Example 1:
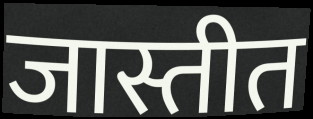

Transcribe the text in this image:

जास्तीत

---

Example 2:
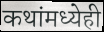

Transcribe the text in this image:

कथांमध्येही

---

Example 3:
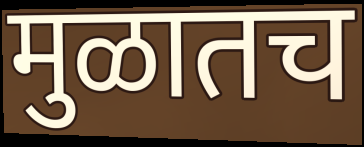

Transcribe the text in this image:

मुळातच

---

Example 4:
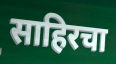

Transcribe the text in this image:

साहिरचा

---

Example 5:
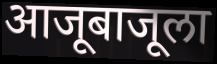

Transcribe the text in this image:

आजूबाजूला